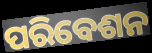
ପରିବେଶନ